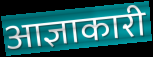
आज्ञाकारी